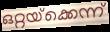
ഒറ്റയ്‌ക്കെന്ന്